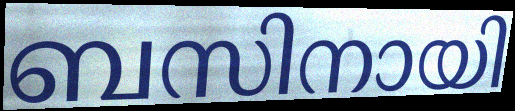
ബസിനായി